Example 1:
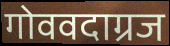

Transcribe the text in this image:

गोववदाग्रज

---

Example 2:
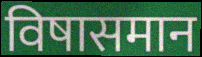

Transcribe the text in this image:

विषासमान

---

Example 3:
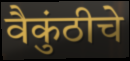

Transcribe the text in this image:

वैकुंठीचे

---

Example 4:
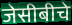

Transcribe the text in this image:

जेसीबीचे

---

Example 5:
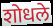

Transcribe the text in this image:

शोधले